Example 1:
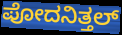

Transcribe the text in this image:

ಪೋದನಿತ್ತಲ್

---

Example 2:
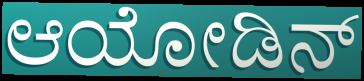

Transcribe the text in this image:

ಆಯೋಡಿನ್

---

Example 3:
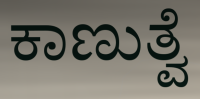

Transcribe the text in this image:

ಕಾಣುತ್ವೆ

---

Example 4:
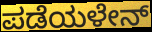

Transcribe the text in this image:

ಪಡೆಯಳೇನ್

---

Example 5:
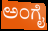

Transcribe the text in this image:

ಅಂಗೈ